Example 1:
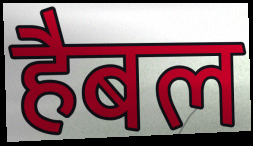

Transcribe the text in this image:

हैबल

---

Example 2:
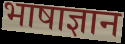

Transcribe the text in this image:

भाषाज्ञान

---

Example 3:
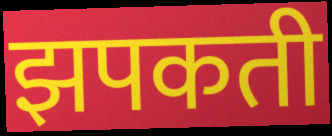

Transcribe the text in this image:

झपकती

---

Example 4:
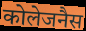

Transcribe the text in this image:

कोलेजनैस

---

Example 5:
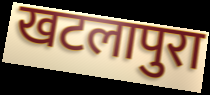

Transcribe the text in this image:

खटलापुरा